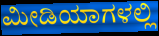
ಮೀಡಿಯಾಗಳಲ್ಲಿ